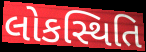
લોકસ્થિતિ